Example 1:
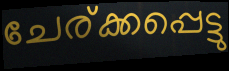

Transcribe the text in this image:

ചേര്ക്കപ്പെട്ടു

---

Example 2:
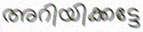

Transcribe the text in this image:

അറിയിക്കട്ടേ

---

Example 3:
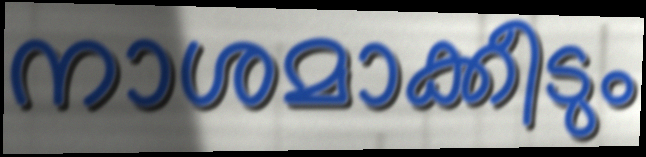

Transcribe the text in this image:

നാശമാക്കീടും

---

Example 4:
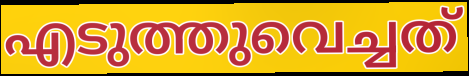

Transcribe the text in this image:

എടുത്തുവെച്ചത്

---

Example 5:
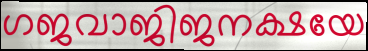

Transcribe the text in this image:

ഗജവാജിജനക്ഷയേ